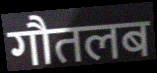
गौतलब